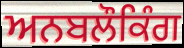
ਅਨਬਲੌਕਿੰਗ